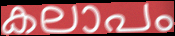
കലാപം